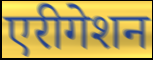
एरीगेशन